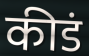
कीडं